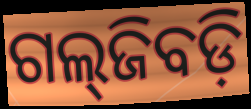
ଗଲ୍‌ଜିବଡ଼ି